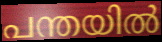
പന്തയിൽ